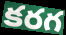
కరగ